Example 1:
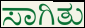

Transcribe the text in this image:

ಸಾಗಿತು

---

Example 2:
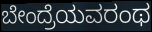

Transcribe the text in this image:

ಬೇಂದ್ರೆಯವರಂಥ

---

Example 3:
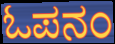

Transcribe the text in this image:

ಓಪನಂ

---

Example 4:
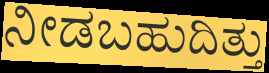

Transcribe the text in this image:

ನೀಡಬಹುದಿತ್ತು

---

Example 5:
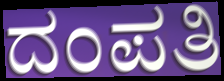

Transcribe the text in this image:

ದಂಪತಿ